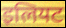
इलियट